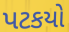
પટકયો